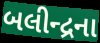
બલીન્દ્રના